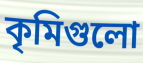
কৃমিগুলো